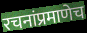
रचनांप्रमाणेच